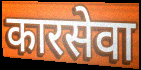
कारसेवा